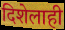
दिशेलाही